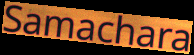
Samachara